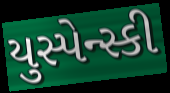
યુસ્પેન્સ્કી